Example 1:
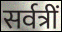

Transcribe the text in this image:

सर्वत्रीं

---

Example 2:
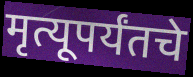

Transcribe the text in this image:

मृत्यूपर्यंतचे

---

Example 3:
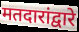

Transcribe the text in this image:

मतदारांद्वारे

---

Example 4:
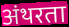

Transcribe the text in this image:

अंथरता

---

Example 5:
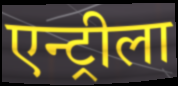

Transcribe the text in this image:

एन्ट्रीला